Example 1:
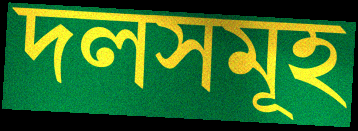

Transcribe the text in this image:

দলসমূহ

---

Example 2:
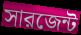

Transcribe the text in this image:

সারজেন্ট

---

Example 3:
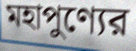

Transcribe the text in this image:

মহাপুণ্যের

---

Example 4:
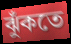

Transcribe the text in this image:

ঝুঁকতে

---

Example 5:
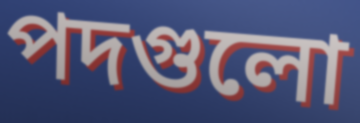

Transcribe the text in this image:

পদগুলো